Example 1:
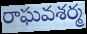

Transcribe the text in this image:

రాఘవశర్మ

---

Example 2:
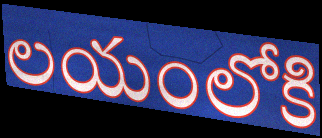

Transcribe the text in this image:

లయంలోకి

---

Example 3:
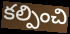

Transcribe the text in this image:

కల్పించి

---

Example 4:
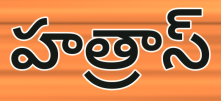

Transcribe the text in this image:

హత్రాస్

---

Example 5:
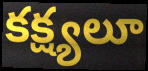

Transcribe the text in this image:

కక్ష్యలూ